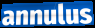
annulus